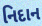
નિદાન